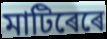
মাটিৰেৰে